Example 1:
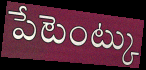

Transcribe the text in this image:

పేటెంట్కు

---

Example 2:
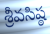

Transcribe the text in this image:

శ్రీవసిష్ఠ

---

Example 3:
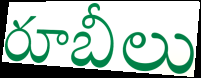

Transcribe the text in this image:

రూబీలు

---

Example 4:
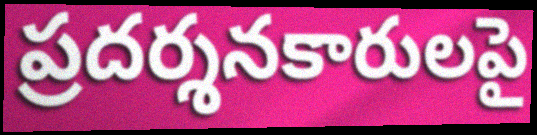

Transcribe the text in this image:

ప్రదర్శనకారులపై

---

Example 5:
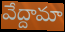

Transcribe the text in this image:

వేద్దామా